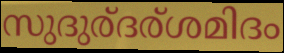
സുദുര്ദര്ശമിദം